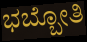
ಭಬ್ಬೋತಿ